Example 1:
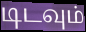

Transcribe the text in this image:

டிடவும்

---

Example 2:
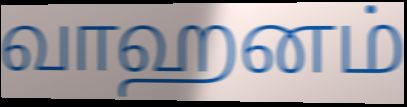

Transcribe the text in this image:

வாஹனம்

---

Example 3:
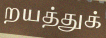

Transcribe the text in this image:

றயத்துக்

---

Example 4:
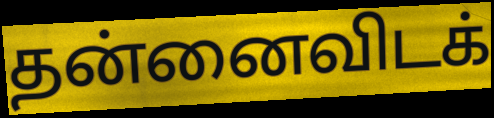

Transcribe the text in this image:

தன்னைவிடக்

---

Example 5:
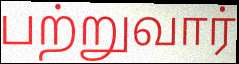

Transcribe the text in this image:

பற்றுவார்